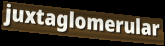
juxtaglomerular